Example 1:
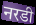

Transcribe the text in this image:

नरडी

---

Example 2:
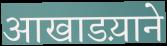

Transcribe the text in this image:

आखाडय़ाने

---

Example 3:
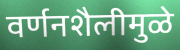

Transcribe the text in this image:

वर्णनशैलीमुळे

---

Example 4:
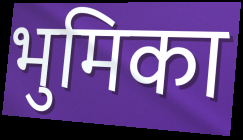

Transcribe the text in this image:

भुमिका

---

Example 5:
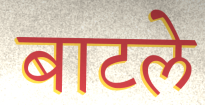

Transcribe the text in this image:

बाटले